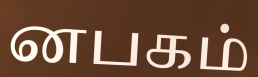
னபகம்